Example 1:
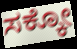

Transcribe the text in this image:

ಸಕ್ಕೋ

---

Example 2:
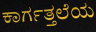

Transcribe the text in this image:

ಕಾರ್ಗತ್ತಲೆಯ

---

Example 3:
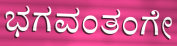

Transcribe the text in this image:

ಭಗವಂತಂಗೇ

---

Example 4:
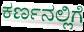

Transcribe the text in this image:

ಕರ್ಣನಲ್ಲಿಗೆ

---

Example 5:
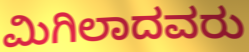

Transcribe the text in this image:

ಮಿಗಿಲಾದವರು